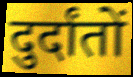
दुर्दांतों